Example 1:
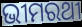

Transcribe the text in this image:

ଭୀମରଥୀ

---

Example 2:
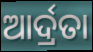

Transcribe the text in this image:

ଆର୍ଦ୍ରତା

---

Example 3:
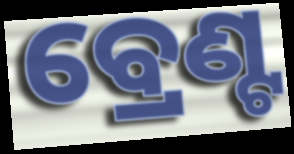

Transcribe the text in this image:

ବ୍ରେଣ୍ଟ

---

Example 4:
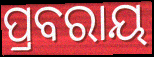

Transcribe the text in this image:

ପ୍ରବରାୟ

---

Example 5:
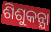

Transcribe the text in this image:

ଶିଶୁକନ୍ଯା